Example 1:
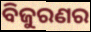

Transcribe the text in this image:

ବିଜୁରଣର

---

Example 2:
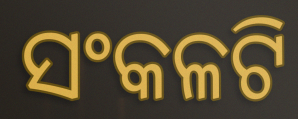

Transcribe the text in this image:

ସଂକଳଟି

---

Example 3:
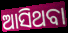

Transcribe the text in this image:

ଆସିଥବା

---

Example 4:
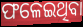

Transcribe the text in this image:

ଫଳେଇଥିବା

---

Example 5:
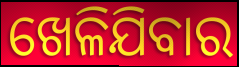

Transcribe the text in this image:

ଖେଳିଯିବାର